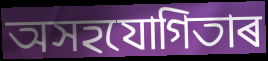
অসহযোগিতাৰ